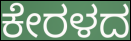
ಕೇರಳದ